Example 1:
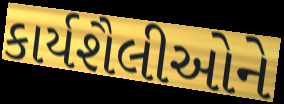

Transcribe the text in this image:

કાર્યશૈલીઓને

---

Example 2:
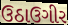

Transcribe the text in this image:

ઉઠાઉગીર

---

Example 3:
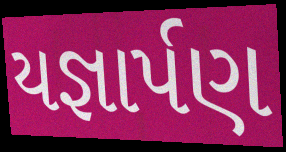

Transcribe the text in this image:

યજ્ઞાર્પણ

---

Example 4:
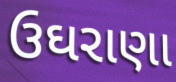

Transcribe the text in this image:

ઉઘરાણા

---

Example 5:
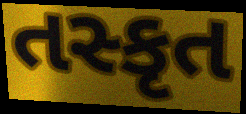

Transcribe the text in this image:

તસ્કૃત